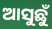
ଆସୁଛୁଁ